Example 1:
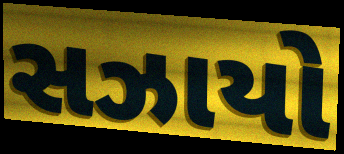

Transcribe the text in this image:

સઝાયો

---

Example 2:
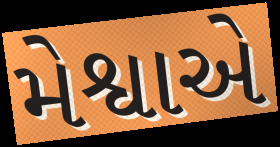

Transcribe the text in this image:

મેશ્વાએ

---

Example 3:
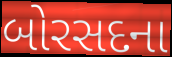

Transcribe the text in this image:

બોરસદના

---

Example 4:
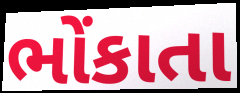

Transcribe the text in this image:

ભોંકાતા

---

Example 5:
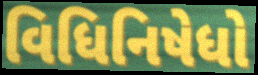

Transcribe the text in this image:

વિધિનિષેધો